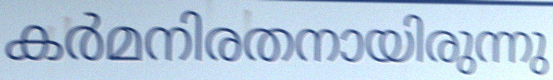
കർമനിരതനായിരുന്നു